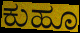
ಕುಹೂ